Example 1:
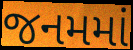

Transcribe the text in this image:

જનમમાં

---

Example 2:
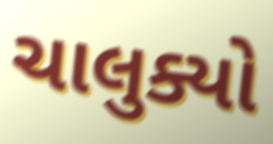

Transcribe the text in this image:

ચાલુક્યો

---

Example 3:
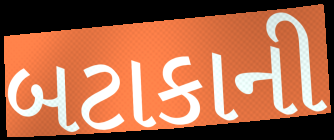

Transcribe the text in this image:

બટાકાની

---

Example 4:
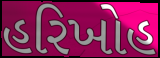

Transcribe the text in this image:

હરિખોહ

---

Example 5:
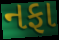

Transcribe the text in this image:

નફા